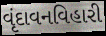
વૃંદાવનવિહારી